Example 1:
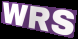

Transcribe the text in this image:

WRS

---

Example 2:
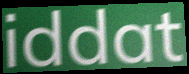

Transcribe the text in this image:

iddat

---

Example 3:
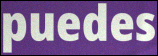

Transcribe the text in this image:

puedes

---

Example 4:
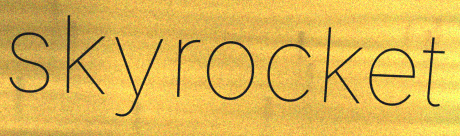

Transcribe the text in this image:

skyrocket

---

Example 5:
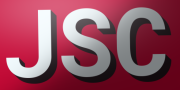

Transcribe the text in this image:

JSC